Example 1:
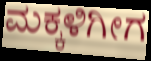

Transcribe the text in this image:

ಮಕ್ಕಳಿಗೀಗ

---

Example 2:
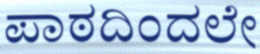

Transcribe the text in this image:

ಪಾಠದಿಂದಲೇ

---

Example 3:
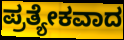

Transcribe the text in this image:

ಪ್ರತ್ಯೇಕವಾದ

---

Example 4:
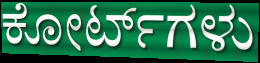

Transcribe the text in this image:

ಕೋರ್ಟ್‌ಗಳು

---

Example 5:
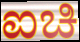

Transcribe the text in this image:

ಐಚಿ